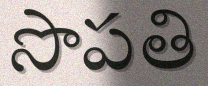
సొపతి